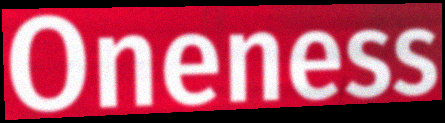
Oneness